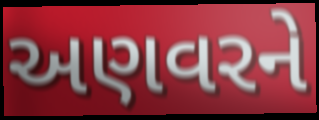
અણવરને